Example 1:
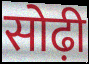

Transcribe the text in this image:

सोढ़ी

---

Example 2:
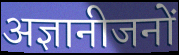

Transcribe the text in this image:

अज्ञानीजनों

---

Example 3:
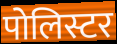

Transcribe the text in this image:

पोलिस्टर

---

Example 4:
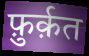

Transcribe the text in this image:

फ़ुर्क़त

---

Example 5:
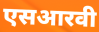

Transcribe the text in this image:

एसआरवी